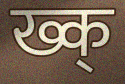
ख्क्